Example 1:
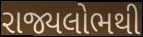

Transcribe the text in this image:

રાજ્યલોભથી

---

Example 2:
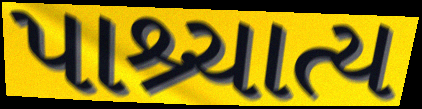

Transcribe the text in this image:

પાશ્ર્ચાત્ય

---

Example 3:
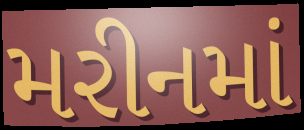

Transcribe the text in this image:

મરીનમાં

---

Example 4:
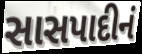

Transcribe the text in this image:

સાસપાદીનં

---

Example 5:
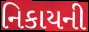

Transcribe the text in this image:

નિકાયની